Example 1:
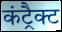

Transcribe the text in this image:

कंट्रैक्ट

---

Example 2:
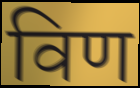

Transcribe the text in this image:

विण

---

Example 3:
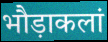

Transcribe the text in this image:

भौड़ाकलां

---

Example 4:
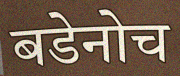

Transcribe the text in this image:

बडेनोच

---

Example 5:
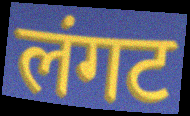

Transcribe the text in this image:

लंगट